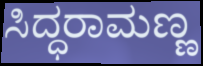
ಸಿದ್ಧರಾಮಣ್ಣ